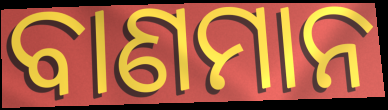
ବାଣମାନ